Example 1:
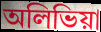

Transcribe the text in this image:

অলিভিয়া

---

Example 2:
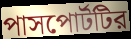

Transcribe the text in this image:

পাসপোর্টটির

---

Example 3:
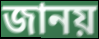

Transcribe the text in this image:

জানয়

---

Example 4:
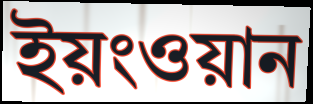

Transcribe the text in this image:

ইয়ংওয়ান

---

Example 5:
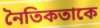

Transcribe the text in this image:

নৈতিকতাকে